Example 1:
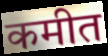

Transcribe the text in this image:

कमीत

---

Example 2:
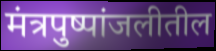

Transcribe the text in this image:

मंत्रपुष्पांजलीतील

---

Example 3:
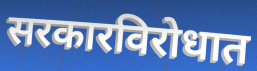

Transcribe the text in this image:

सरकारविरोधात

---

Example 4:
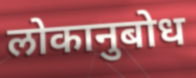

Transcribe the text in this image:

लोकानुबोध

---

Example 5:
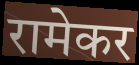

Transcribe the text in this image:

रामेकर